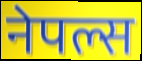
नेपल्स